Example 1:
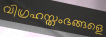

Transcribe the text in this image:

വിഗ്രഹസ്തംഭങ്ങളെ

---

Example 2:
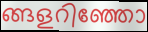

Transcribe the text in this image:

ങ്ങളറിഞ്ഞോ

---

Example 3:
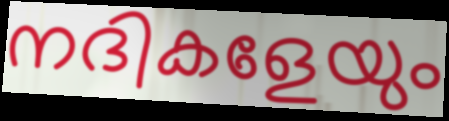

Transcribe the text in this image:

നദികളേയും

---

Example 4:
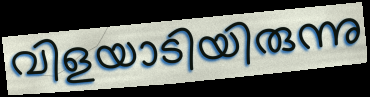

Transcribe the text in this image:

വിളയാടിയിരുന്നു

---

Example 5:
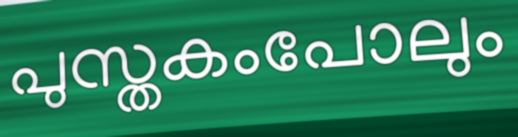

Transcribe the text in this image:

പുസ്തകംപോലും